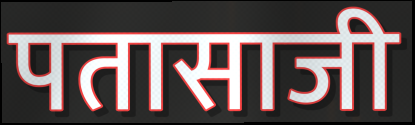
पतासाजी